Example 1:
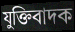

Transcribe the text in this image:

যুক্তিবাদক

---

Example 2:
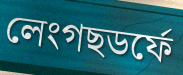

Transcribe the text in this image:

লেংগছডৰ্ফে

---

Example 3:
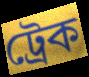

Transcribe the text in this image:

ট্ৰেক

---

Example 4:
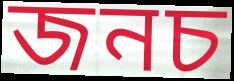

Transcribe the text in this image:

জনচ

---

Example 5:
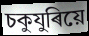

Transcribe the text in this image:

চকুযুৰিয়ে